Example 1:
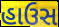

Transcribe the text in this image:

હાઉસ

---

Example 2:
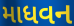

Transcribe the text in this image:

માધવન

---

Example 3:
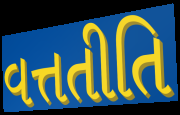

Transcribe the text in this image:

વત્તતીતિ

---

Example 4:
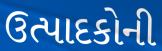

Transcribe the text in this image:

ઉત્પાદકોની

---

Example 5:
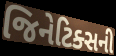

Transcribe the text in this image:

જિનેટિક્સની